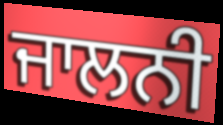
ਜਾਲਨੀ